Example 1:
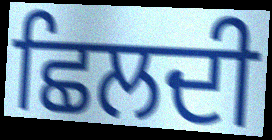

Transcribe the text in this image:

ਛਿਲਦੀ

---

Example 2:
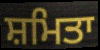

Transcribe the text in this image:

ਸ਼ਮਿਤਾ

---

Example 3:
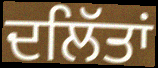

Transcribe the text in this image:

ਦਲਿੱਤਾਂ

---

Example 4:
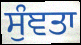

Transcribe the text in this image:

ਸੁੰਞਤਾ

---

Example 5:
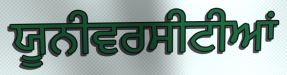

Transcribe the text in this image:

ਯੂਨੀਵਰਸੀਟੀਆਂ